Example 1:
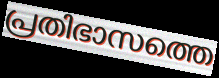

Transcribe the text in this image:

പ്രതിഭാസത്തെ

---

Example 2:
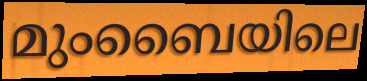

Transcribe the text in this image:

മുംബൈയിലെ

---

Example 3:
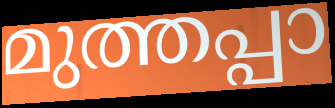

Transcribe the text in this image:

മുത്തപ്പാ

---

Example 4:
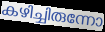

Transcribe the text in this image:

കഴിച്ചിരുന്നോ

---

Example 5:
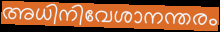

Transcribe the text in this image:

അധിനിവേശാനന്തരം